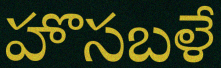
హొసబళే